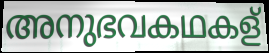
അനുഭവകഥകള്